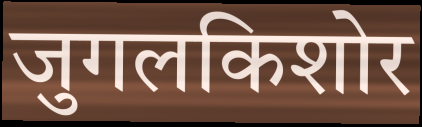
जुगलकिशोर